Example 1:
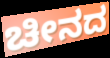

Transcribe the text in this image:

ಚೀನದ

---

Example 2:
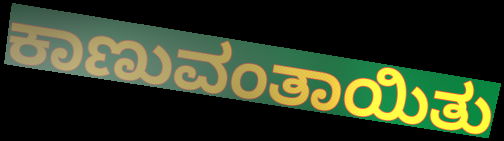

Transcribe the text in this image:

ಕಾಣುವಂತಾಯಿತು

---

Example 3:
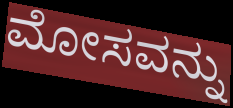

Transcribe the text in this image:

ಮೋಸವನ್ನು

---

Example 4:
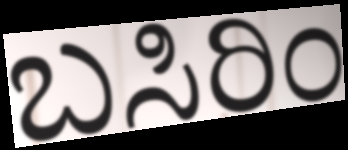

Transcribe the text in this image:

ಬಸಿರಿಂ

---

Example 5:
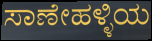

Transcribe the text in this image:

ಸಾಣೇಹಳ್ಳಿಯ